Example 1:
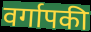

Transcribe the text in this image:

वर्गापकी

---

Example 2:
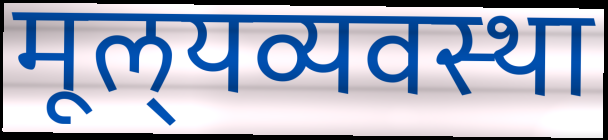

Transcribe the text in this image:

मूल्यव्यवस्था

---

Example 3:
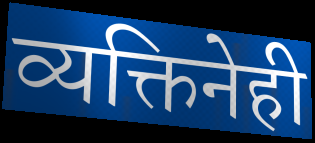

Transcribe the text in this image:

व्यक्तिनेही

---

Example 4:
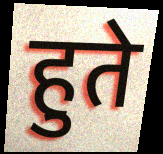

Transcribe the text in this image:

हुते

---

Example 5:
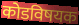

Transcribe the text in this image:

कोडविषयक